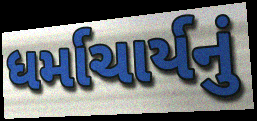
ધર્માચાર્યનું